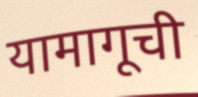
यामागूची